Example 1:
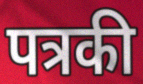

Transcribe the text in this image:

पत्रकी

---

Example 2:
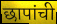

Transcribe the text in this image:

छापांची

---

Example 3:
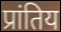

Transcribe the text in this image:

प्रांतिय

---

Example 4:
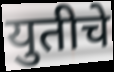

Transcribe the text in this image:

युतीचे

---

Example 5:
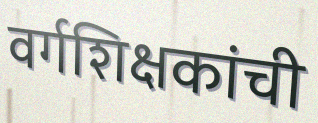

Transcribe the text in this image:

वर्गशिक्षकांची